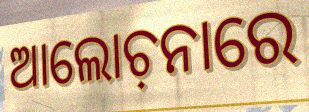
ଆଲୋଚ଼ନାରେ